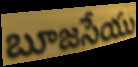
బూజసేయు